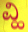
ವ್ಹಿ